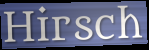
Hirsch